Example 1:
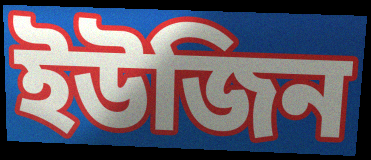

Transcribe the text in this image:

ইউজিন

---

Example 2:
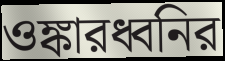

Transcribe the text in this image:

ওঙ্কারধ্বনির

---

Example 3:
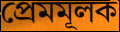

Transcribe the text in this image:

প্রেমমূলক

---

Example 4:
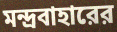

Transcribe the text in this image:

মন্দ্রবাহারের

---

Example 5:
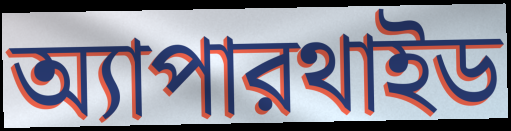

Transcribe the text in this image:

অ্যাপারথাইড